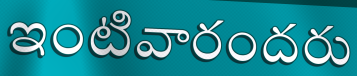
ఇంటివారందరు